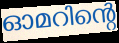
ഓമറിന്റെ